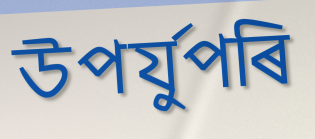
উপৰ্যুপৰি